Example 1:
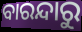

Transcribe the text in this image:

ବାରନ୍ଦାରୁ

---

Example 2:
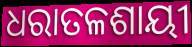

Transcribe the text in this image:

ଧରାତଳଶାୟୀ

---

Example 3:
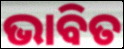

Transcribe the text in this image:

ଭାବିତ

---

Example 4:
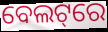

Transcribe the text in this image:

ବେଲଟ୍‌ରେ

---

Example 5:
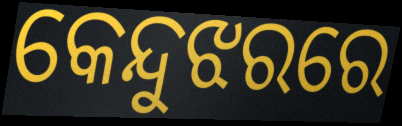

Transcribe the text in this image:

କେନ୍ଦୁଝରରେ